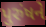
પુરુંષને